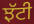
ਝੱਟੀ